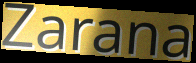
Zarana